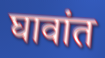
घावांत